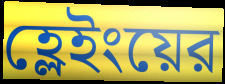
হ্লেইংয়ের